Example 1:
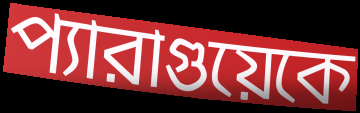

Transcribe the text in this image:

প্যারাগুয়েকে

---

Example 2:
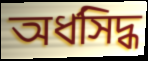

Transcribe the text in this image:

অর্ধসিদ্ধ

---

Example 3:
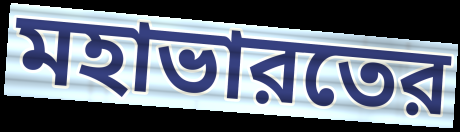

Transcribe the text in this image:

মহাভারতের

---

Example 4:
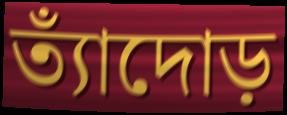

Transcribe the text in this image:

ত্যাঁদোড়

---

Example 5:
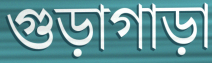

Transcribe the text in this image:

গুড়াগাড়া